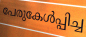
പേരുകേൾപ്പിച്ച